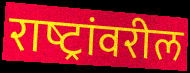
राष्ट्रांवरील